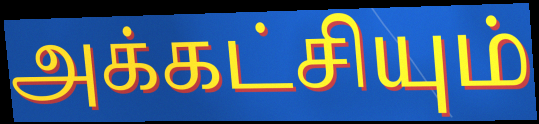
அக்கட்சியும்